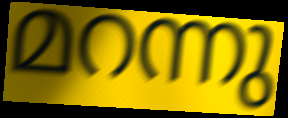
മറന്നു